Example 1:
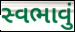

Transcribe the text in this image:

સ્વભાવું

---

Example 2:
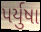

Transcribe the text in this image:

પર્યુષા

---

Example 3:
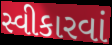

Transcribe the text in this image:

સ્વીકારવાં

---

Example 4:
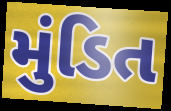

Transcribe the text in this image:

મુંડિત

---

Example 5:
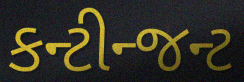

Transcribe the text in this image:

કન્ટીન્જન્ટ